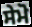
ਸੇਮੋ